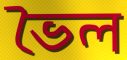
ভৈল